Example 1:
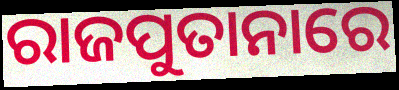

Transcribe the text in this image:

ରାଜପୁତାନାରେ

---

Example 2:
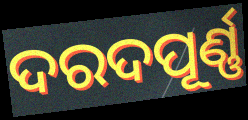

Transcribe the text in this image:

ଦରଦପୂର୍ଣ୍ଣ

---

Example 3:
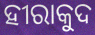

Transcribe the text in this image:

ହୀରାକୁଦ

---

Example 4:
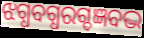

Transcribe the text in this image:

ଝଗ୍ଧବଗ୍ଧରଗ୍ଦଜ୍ଞବଦ୍ଭ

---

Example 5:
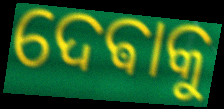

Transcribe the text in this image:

ଦେଵାକୁ